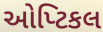
ઓપ્ટિકલ